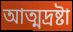
আত্মদ্রষ্টা